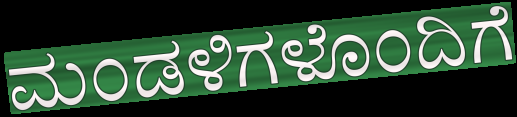
ಮಂಡಳಿಗಳೊಂದಿಗೆ